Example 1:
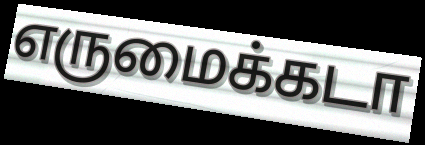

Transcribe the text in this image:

எருமைக்கடா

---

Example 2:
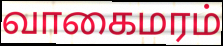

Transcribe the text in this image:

வாகைமரம்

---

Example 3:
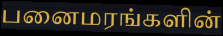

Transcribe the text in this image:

பனைமரங்களின்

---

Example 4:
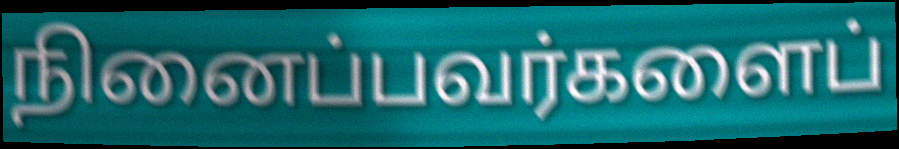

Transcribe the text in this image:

நினைப்பவர்களைப்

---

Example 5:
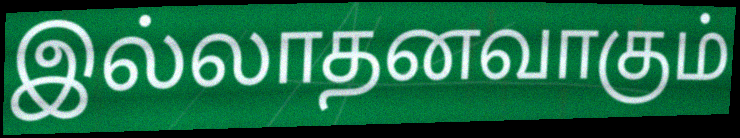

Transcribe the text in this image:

இல்லாதனவாகும்